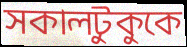
সকালটুকুকে